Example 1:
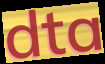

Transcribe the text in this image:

dta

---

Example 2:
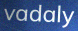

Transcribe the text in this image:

vadaly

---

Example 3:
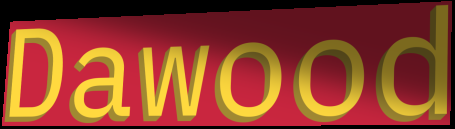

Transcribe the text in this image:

Dawood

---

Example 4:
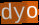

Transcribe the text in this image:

dyo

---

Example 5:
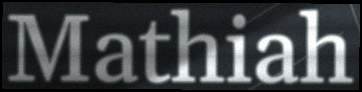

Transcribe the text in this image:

Mathiah